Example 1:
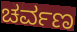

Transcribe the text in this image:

ಚರ್ವಣ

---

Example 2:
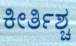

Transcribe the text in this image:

ಕೀರ್ತಿಶ್ಚ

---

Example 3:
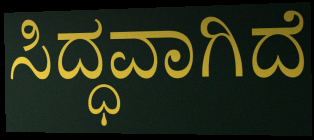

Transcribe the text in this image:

ಸಿದ್ಧವಾಗಿದೆ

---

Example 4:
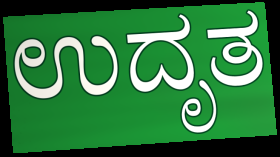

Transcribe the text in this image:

ಉದೃತ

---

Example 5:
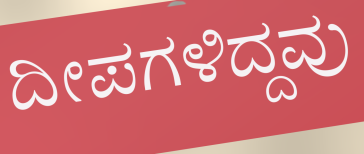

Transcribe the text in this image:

ದೀಪಗಳಿದ್ದವು